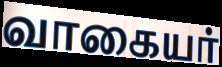
வாகையர்